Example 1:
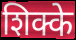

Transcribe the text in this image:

शिक्के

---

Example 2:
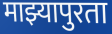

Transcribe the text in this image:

माझ्यापुरता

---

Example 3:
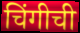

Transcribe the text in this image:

चिंगीची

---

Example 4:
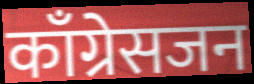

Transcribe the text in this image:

काँग्रेसजन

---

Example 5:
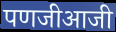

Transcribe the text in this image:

पणजीआजी